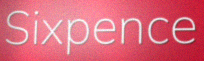
Sixpence